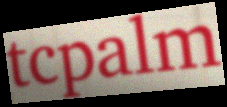
tcpalm